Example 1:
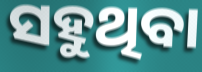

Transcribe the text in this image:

ସହୁଥିବା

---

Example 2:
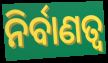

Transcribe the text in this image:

ନିର୍ବାଣତ୍ୱ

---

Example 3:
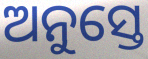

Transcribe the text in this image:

ଅନୁସ୍ତେ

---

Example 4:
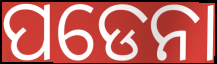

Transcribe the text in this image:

ପଡେନା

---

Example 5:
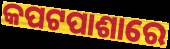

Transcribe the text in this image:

କପଟପାଶାରେ